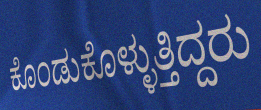
ಕೊಂಡುಕೊಳ್ಳುತ್ತಿದ್ದರು